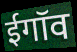
ईगॉव